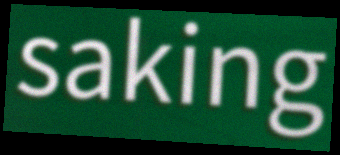
saking